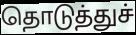
தொடுத்துச்